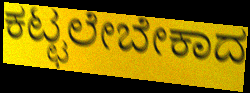
ಕಟ್ಟಲೇಬೇಕಾದ